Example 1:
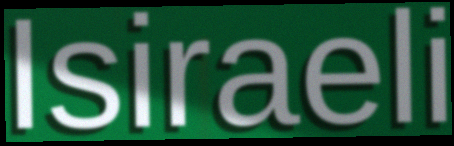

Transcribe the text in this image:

Isiraeli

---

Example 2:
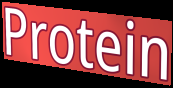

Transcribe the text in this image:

Protein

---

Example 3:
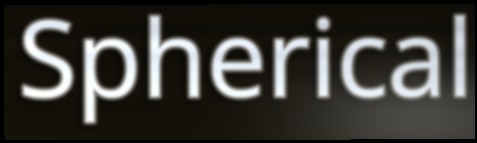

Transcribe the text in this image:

Spherical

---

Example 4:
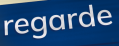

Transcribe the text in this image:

regarde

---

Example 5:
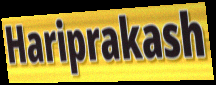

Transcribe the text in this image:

Hariprakash